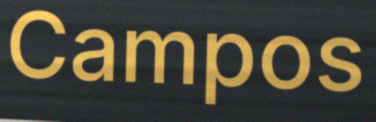
Campos